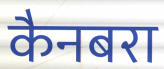
कैनबरा